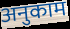
अनुकाम